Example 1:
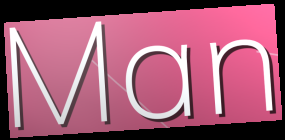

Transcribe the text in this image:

Man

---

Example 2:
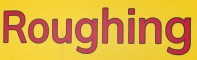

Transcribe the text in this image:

Roughing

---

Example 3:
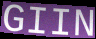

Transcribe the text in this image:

GIIN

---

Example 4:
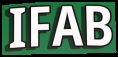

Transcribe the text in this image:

IFAB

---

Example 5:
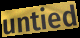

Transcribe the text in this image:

untied